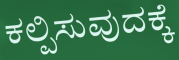
ಕಲ್ಪಿಸುವುದಕ್ಕೆ